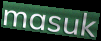
masuk